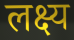
लक्ष्य